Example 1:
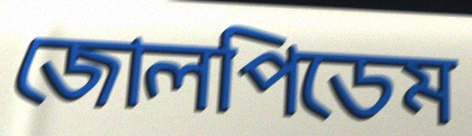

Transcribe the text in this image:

জোলপিডেম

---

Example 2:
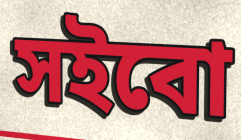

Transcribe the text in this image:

সইবো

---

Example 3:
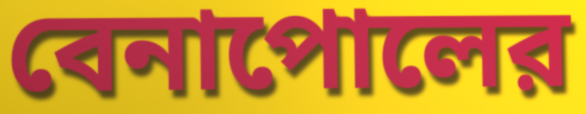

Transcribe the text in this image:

বেনাপোলের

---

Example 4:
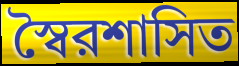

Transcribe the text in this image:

স্বৈরশাসিত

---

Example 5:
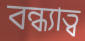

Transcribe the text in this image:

বন্ধ্যাত্ব